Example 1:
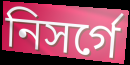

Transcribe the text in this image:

নিসর্গে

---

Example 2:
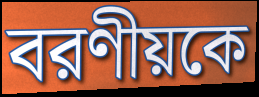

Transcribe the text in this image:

বরণীয়কে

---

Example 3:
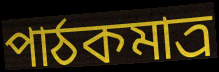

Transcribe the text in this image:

পাঠকমাত্র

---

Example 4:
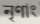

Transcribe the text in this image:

নৃণাং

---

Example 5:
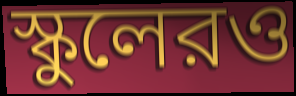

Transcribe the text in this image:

স্কুলেরও